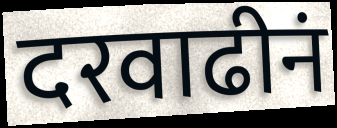
दरवाढीनं